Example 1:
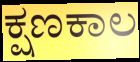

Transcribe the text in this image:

ಕ್ಷಣಕಾಲ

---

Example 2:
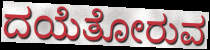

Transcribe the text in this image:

ದಯೆತೋರುವ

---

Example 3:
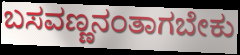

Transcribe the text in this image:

ಬಸವಣ್ಣನಂತಾಗಬೇಕು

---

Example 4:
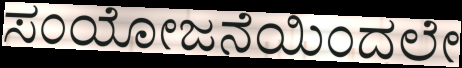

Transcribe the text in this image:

ಸಂಯೋಜನೆಯಿಂದಲೇ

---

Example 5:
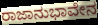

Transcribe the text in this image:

ರಾಜಾನುಭಾವೇನ